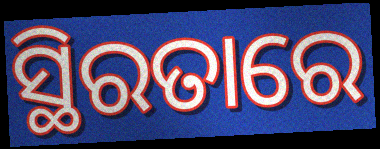
ସ୍ଥିରତାରେ